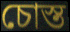
চোস্ত